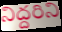
నిద్దరిని